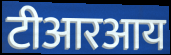
टीआरआय